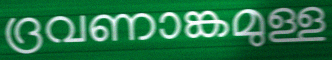
ദ്രവണാങ്കമുള്ള